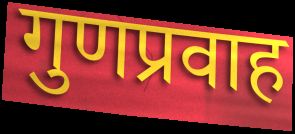
गुणप्रवाह